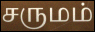
சருமம்